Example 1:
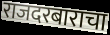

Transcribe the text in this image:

राजदरबाराचा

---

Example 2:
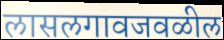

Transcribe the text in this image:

लासलगावजवळील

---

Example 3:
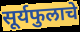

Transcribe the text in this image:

सूर्यफुलाचे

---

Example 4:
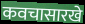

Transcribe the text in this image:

कवचासारखे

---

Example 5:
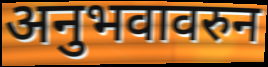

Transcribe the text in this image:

अनुभवावरुन